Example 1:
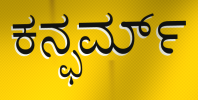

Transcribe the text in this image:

ಕನ್ಫರ್ಮ್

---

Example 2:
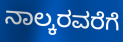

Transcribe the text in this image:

ನಾಲ್ಕರವರೆಗೆ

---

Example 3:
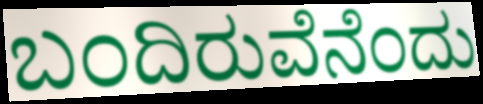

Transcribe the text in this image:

ಬಂದಿರುವೆನೆಂದು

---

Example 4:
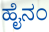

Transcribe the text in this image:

ಹೈನಂ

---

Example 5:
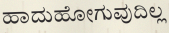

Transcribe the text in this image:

ಹಾದುಹೋಗುವುದಿಲ್ಲ